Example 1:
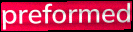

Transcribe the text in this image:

preformed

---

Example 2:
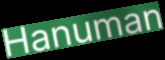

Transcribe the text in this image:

Hanuman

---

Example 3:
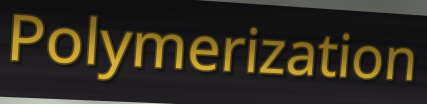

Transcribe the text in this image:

Polymerization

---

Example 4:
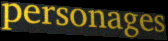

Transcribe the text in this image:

personages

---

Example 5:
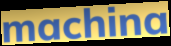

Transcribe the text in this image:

machina